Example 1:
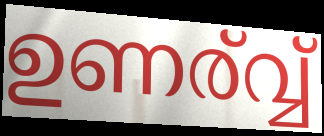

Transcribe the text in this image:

ഉണര്വ്വ്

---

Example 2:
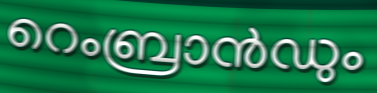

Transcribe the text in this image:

റെംബ്രാൻഡും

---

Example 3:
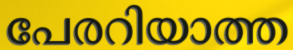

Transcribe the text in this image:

പേരറിയാത്ത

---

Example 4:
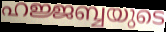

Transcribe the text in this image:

ഹജ്ജബ്ബയുടെ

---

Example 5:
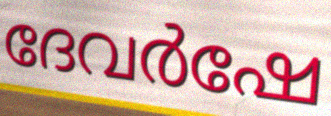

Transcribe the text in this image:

ദേവർഷേ